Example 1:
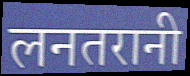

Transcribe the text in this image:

लनतरानी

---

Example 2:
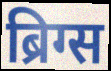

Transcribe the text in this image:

ब्रिग्स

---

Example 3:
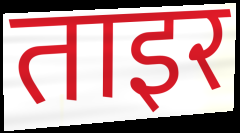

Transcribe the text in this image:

ताइर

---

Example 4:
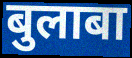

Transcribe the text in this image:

बुलाबा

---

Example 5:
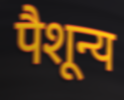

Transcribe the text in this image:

पैशून्य